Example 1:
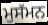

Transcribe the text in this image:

ਮੁਸੱਮਨ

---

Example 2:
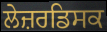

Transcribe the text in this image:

ਲੇਜ਼ਰਡਿਸਕ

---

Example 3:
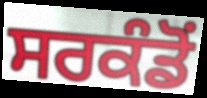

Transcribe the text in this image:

ਸਰਕੰਡੋਂ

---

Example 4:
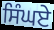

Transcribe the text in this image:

ਸਿੰਘਏ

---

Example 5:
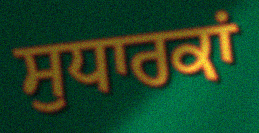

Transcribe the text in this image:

ਸੁਧਾਰਕਾਂ